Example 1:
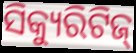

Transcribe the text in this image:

ସିକ୍ୟୁରିଟିଜ୍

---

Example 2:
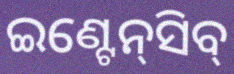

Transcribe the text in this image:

ଇଣ୍ଟେନ୍‍ସିବ୍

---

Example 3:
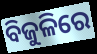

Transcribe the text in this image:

ବିଜୁଳିରେ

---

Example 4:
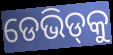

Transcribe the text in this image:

ଡେଭିଡ୍‍କୁ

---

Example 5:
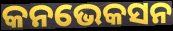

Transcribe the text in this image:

କନଭେକସନ